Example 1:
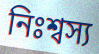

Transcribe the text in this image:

নিঃশ্বস্য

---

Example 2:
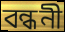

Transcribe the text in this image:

বন্ধনী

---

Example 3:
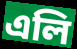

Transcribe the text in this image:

এলি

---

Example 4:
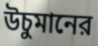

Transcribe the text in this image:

উচুমানের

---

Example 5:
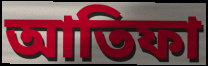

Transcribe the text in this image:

আতিফা